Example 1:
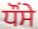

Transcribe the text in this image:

ਧੌਂਸੇ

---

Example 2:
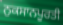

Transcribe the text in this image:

ਨੁਕਸਾਨਪੂਰਤੀ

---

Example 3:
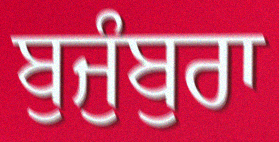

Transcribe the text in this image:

ਬੁਜੁੰਬੁਰਾ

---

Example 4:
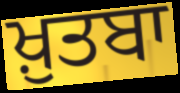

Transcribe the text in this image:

ਖ਼ੁਤਬਾ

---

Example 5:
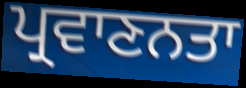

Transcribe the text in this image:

ਪ੍ਰਵਾਣਨਤਾ